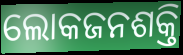
ଲୋକଜନଶକ୍ତି